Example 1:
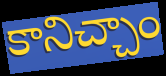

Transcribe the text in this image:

కానిచ్చాం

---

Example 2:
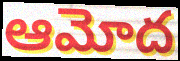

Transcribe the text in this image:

ఆమోద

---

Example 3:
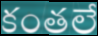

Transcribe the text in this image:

కంతలే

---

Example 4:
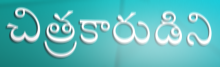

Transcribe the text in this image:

చిత్రకారుడిని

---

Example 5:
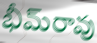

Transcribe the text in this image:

భీమ్‌రావు